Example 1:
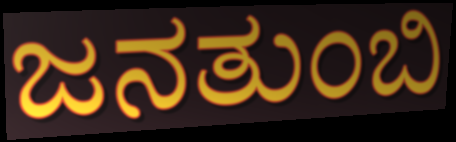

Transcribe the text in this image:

ಜನತುಂಬಿ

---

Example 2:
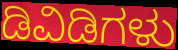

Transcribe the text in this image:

ಡಿವಿಡಿಗಳು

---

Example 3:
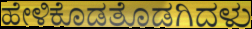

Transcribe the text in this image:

ಹೇಳಿಕೊಡತೊಡಗಿದಳು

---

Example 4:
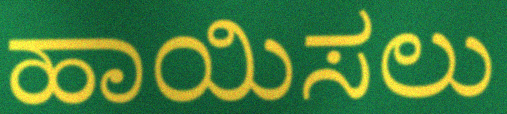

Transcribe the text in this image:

ಹಾಯಿಸಲು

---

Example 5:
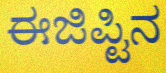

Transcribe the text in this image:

ಈಜಿಪ್ಟಿನ